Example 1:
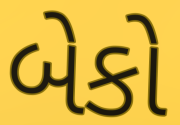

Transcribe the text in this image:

બેકો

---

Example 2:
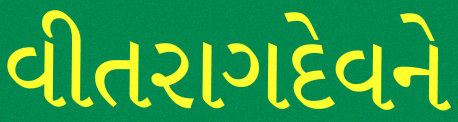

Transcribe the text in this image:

વીતરાગદેવને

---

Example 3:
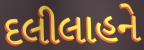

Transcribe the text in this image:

દલીલાહને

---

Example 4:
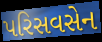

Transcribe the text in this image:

પરિસવસેન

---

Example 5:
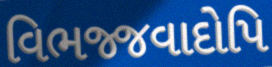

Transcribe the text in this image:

વિભજ્જવાદોપિ